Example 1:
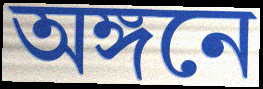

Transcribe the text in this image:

অঙ্গনে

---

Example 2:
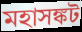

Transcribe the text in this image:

মহাসঙ্কট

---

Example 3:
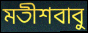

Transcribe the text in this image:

মতীশবাবু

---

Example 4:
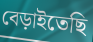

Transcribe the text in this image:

বেড়াইতেছি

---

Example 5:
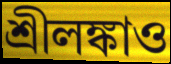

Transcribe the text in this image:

শ্রীলঙ্কাও